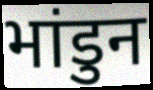
भांडुन